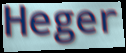
Heger